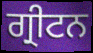
ਗ੍ਰੀਟਨ